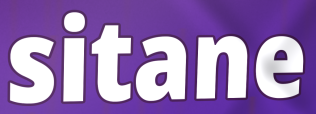
sitane